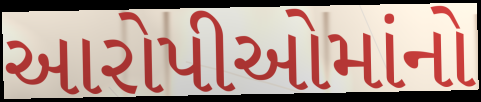
આરોપીઓમાંનો